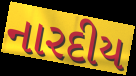
નારદીય